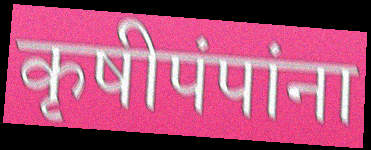
कृषीपंपांना